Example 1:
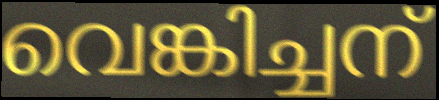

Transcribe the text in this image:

വെങ്കിച്ചന്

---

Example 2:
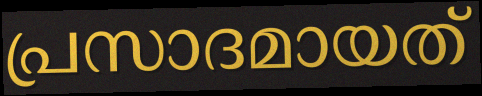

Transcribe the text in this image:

പ്രസാദമായത്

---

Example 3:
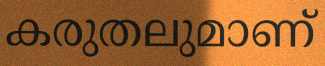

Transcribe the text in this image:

കരുതലുമാണ്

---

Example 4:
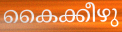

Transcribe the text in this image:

കൈക്കീഴു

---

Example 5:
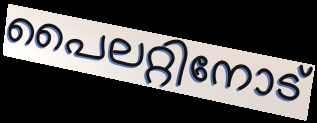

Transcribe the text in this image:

പൈലറ്റിനോട്